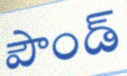
పౌండ్